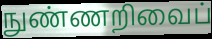
நுண்ணறிவைப்